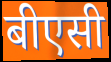
बीएसी